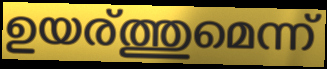
ഉയര്ത്തുമെന്ന്